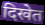
दिखेत